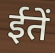
ईतें